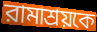
রামাশ্রয়কে